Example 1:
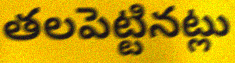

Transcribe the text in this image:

తలపెట్టినట్లు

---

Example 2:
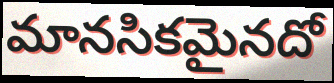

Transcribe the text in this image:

మానసికమైనదో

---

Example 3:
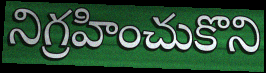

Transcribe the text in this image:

నిగ్రహించుకొని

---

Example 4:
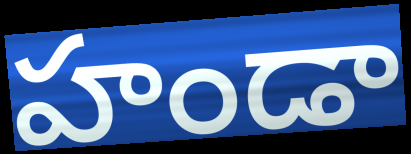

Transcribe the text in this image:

హండా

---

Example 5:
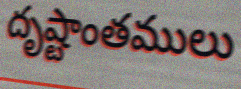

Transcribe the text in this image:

దృష్టాంతములు